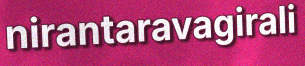
nirantaravagirali